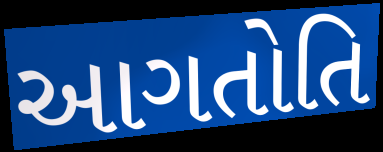
આગતોતિ